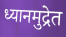
ध्यानमुद्रेत